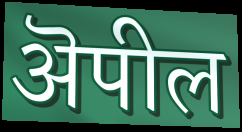
ऄपील